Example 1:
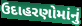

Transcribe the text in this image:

ઉદાહરણોમાંનું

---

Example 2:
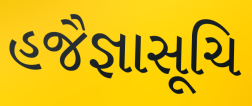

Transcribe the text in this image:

હજૈજ્ઞાસૂચિ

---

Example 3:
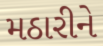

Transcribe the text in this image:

મઠારીને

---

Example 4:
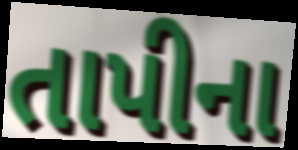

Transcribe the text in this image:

તાપીના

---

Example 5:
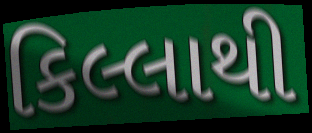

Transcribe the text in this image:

કિલ્લાથી